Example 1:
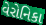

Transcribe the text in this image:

વેરોનિકા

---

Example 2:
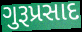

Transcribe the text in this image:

ગુરૂપ્રસાદ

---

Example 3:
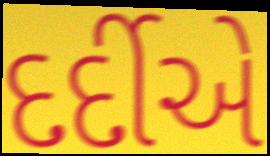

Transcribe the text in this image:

દર્દીએ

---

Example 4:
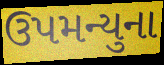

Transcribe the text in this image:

ઉપમન્યુના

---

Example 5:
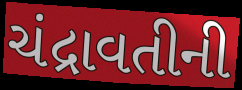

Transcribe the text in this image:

ચંદ્રાવતીની